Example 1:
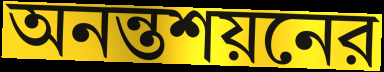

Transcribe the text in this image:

অনন্তশয়নের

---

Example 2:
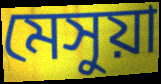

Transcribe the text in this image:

মেসুয়া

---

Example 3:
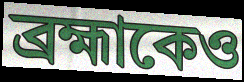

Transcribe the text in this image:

ব্রহ্মাকেও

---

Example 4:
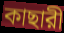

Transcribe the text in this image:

কাছারী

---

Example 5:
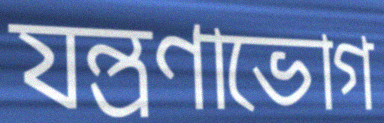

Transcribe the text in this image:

যন্ত্রণাভোগ